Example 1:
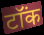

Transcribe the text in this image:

टॉंक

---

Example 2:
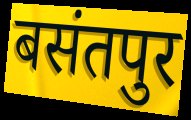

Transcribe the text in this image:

बसंतपुर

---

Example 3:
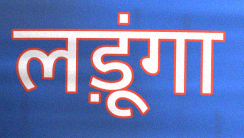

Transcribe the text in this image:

लड़ूंगा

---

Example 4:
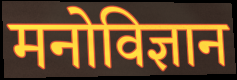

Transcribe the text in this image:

मनोविज्ञान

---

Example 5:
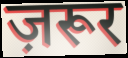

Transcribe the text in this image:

ज़रूर